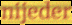
nijeder